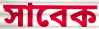
সাবেক